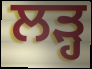
ਲੜ੍ਹ